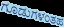
ಗೂಡುಗಳಂತಹ